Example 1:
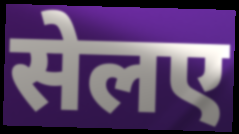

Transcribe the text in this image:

सेलए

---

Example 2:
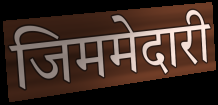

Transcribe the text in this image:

जिममेदारी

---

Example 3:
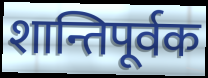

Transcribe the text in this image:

शान्तिपूर्वक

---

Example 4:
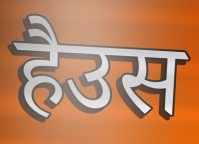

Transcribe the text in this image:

हैउस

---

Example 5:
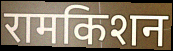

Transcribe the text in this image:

रामकिशन